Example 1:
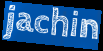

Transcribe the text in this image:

jachin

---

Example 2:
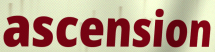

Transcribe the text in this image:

ascension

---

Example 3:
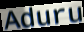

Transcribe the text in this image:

Aduru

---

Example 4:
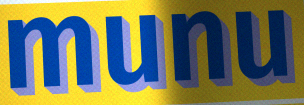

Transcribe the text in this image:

munu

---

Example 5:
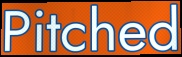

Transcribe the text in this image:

Pitched